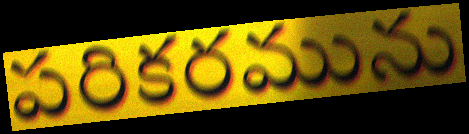
పరికరమును